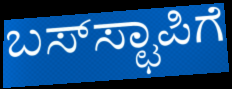
ಬಸ್‌ಸ್ಟಾಪಿಗೆ